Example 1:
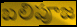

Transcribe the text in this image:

బలిపూజ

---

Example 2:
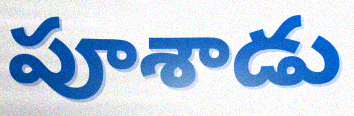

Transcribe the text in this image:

పూశాడు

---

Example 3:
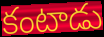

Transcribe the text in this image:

కంటాడు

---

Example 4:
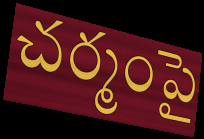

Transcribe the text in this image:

చర్మంపై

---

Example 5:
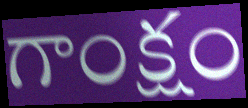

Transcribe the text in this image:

గాంక్షం